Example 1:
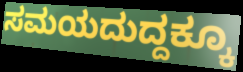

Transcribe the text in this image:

ಸಮಯದುದ್ದಕ್ಕೂ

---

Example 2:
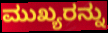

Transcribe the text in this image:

ಮುಖ್ಯರನ್ನು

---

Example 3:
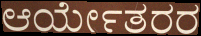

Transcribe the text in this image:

ಆರ್ಯೇತರರ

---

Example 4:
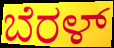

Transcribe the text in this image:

ಬೆರಳ್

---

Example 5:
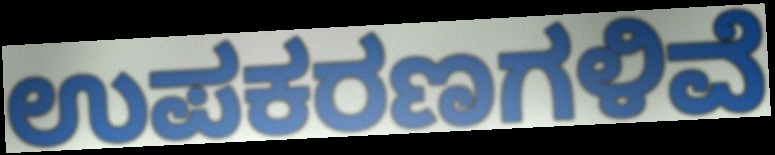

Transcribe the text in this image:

ಉಪಕರಣಗಳಿವೆ